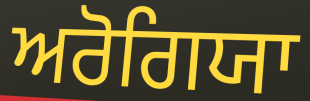
ਅਰੋਗਿਯਾ